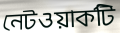
নেটওয়ার্কটি